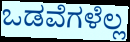
ಒಡವೆಗಳೆಲ್ಲ